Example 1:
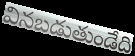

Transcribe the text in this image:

వినబడుతుండేది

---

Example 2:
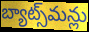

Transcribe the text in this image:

బ్యాట్స్‌మన్లు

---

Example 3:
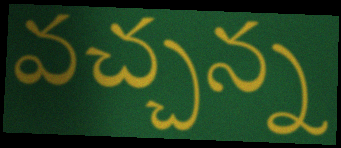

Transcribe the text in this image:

వచ్చన్న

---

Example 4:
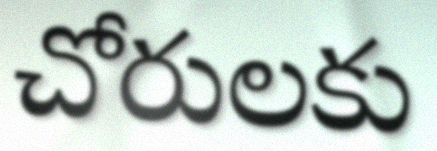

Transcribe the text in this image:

చోరులకు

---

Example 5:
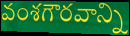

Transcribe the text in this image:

వంశగౌరవాన్ని